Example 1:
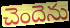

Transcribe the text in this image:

చెందెను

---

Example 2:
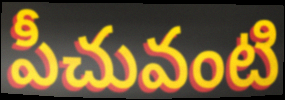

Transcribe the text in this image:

పీచువంటి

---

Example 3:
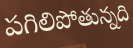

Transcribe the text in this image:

పగిలిపోతున్నది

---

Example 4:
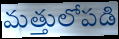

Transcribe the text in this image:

మత్తులోపడి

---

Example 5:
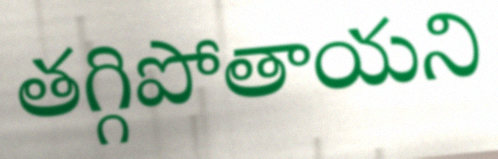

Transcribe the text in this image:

తగ్గిపోతాయని